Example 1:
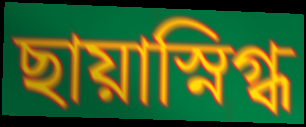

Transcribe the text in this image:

ছায়াস্নিগ্ধ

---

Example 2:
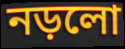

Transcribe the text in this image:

নড়লো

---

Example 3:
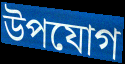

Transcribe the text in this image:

উপযোগ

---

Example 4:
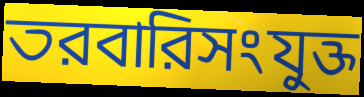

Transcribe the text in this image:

তরবারিসংযুক্ত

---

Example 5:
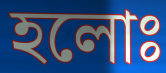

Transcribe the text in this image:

হলোঃ